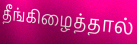
தீங்கிழைத்தால்